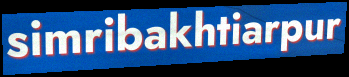
simribakhtiarpur